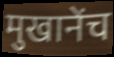
मुखानेंच